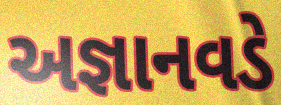
અજ્ઞાનવડે